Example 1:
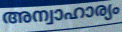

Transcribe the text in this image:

അന്വാഹാര്യം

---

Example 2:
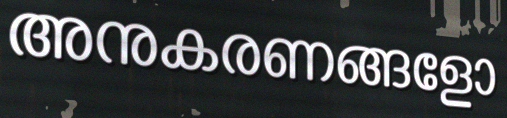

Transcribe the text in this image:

അനുകരണങ്ങളോ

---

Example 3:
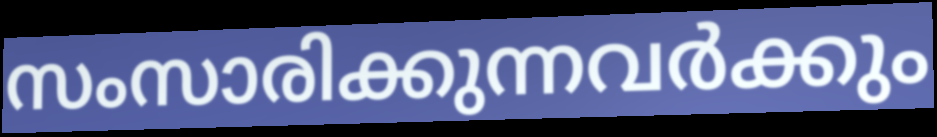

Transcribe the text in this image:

സംസാരിക്കുന്നവർക്കും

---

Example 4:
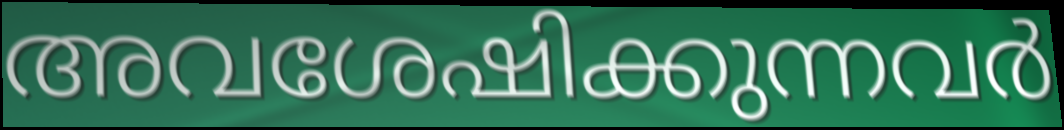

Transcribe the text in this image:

അവശേഷിക്കുന്നവർ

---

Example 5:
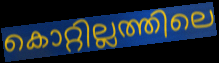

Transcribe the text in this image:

കൊറ്റില്ലത്തിലെ